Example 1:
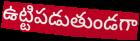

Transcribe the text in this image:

ఉట్టిపడుతుండగా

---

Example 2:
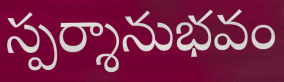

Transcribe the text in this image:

స్పర్శానుభవం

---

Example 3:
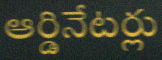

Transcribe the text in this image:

ఆర్డినేటర్లు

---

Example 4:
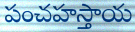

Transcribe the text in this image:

పంచహస్తాయ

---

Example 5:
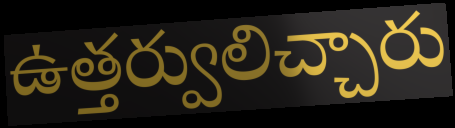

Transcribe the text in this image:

ఉత్తర్వులిచ్చారు